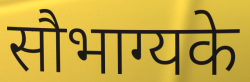
सौभाग्यके